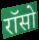
रॉसो